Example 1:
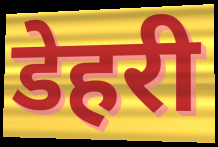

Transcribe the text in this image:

डेहरी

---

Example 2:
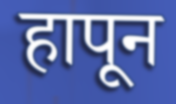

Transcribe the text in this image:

हापून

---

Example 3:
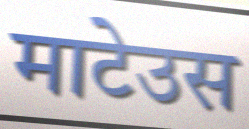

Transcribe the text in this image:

माटेउस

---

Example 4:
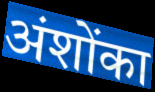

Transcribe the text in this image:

अंशोंका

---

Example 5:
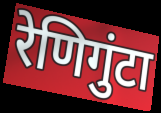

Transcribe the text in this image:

रेणिगुंटा